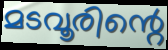
മടവൂരിന്റെ